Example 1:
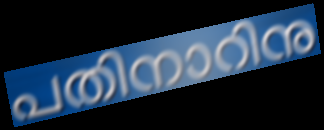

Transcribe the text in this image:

പതിനാറിനു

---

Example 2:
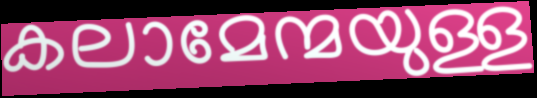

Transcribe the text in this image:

കലാമേന്മയുള്ള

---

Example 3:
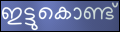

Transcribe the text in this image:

ഇട്ടുകൊണ്ട്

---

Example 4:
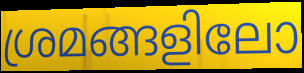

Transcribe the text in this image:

ശ്രമങ്ങളിലോ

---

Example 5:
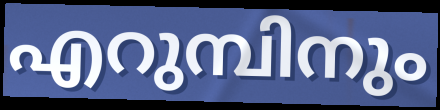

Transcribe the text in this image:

എറുമ്പിനും